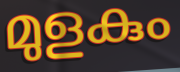
മുളകും